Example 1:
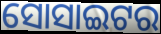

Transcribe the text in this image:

ସୋସାଇଟର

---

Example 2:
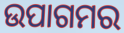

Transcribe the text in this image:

ଉପାଗମର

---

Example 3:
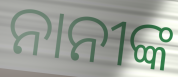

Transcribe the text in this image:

ନାନୀଙ୍କ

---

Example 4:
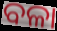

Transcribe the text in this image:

ବଳା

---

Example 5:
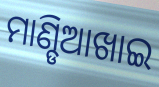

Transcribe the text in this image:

ମାଣ୍ଡିଆଖାଇ